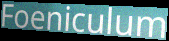
Foeniculum